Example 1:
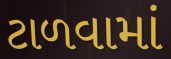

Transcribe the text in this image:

ટાળવામાં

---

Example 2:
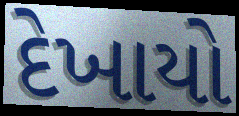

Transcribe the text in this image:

દેખાયો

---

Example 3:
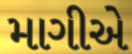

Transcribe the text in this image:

માગીએ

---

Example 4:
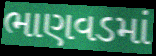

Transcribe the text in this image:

ભાણવડમાં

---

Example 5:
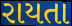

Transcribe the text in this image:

રાયતા